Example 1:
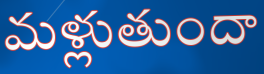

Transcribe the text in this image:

మళ్లుతుందా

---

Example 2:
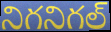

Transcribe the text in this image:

నిగనిగల్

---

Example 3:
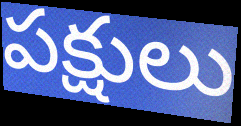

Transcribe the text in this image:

పక్షులు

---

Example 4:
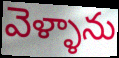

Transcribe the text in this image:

వెళ్ళాను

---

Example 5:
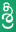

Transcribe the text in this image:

శ్రీ